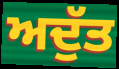
ਅਦੁੱਤ